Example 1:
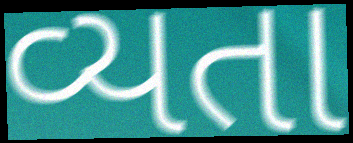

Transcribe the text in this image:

વ્યતા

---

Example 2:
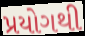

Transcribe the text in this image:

પ્રયોગથી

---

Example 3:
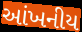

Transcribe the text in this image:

આંખનીય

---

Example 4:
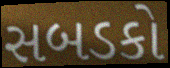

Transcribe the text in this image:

સબડકો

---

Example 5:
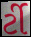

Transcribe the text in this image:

ર્ટી